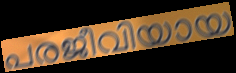
പരജീവിയായ